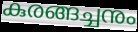
കുരങ്ങച്ചനും